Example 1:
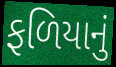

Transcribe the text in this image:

ફળિયાનું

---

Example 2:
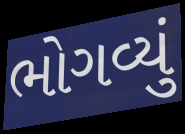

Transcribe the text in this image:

ભોગવ્યું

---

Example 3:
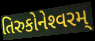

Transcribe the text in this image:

તિરુકોનેશ્‍વરમ્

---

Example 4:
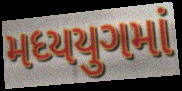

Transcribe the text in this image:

મધ્યયુગમાં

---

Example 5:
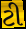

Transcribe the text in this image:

ટી